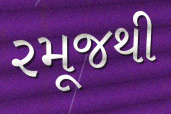
રમૂજથી